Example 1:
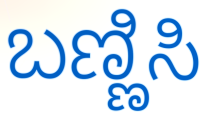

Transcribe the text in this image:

ಬಣ್ಣಿಸಿ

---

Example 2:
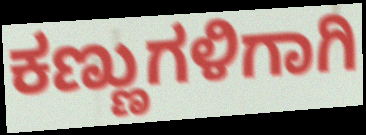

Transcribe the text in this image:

ಕಣ್ಣುಗಳಿಗಾಗಿ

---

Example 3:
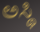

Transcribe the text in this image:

ಅಸ್ಥಿ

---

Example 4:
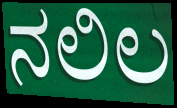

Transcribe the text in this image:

ನಲಿಲ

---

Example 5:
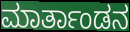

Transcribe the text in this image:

ಮಾರ್ತಾಂಡನ